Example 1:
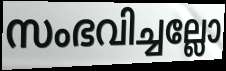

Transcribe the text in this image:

സംഭവിച്ചല്ലോ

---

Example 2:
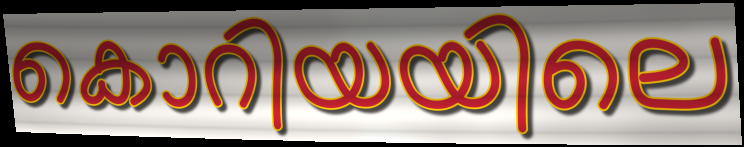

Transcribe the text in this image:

കൊറിയയിലെ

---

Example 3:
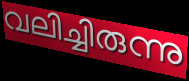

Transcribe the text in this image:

വലിച്ചിരുന്നു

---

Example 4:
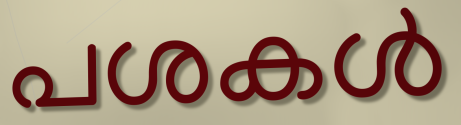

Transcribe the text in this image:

പശകൾ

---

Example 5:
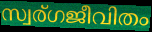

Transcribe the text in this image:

സ്വര്ഗജീവിതം